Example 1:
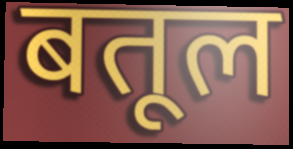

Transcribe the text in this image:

बतूल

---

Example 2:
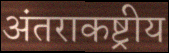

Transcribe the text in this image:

अंतराकष्ट्रीय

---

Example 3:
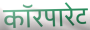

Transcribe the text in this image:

कॉरपारेट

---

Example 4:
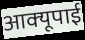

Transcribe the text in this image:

आक्यूपाई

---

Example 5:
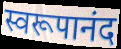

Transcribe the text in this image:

स्वरूपानंद